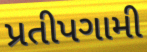
પ્રતીપગામી